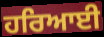
ਹਰਿਆਈ